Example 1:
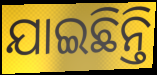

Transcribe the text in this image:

ଯାଇଛିନ୍ତି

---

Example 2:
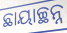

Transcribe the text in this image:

ଛାୟାଚ୍ଛନ୍ନ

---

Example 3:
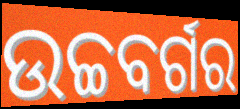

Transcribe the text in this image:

ଉଚ୍ଚବର୍ଗର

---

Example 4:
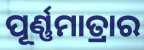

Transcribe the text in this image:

ପୂର୍ଣ୍ଣମାତ୍ରାର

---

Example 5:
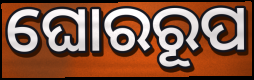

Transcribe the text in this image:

ଘୋରରୂପ